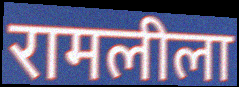
रामलीला